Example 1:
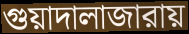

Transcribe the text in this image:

গুয়াদালাজারায়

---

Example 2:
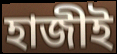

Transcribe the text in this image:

হাজীই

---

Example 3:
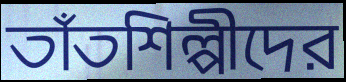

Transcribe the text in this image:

তাঁতশিল্পীদের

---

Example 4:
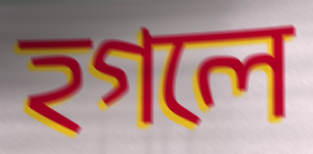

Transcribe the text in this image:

হগলে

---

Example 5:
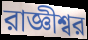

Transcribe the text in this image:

রাজ্ঞীশ্বর